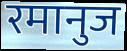
रमानुज